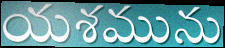
యశమును